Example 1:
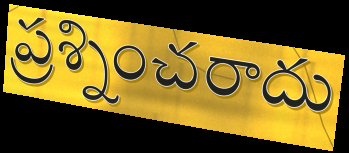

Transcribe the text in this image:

ప్రశ్నించరాదు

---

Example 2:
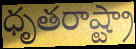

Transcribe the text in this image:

ధృతరాష్ట్రా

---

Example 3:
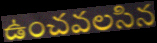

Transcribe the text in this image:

ఉంచవలసిన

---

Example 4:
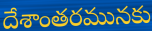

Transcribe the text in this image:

దేశాంతరమునకు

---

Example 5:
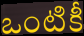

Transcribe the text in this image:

ఒంటికీ